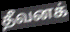
தீவனக்